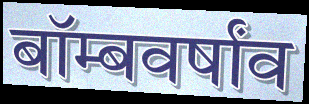
बॉम्बवर्षांव